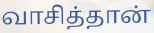
வாசித்தான்